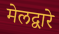
मेलद्वारे